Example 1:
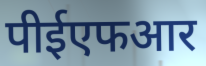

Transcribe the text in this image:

पीईएफआर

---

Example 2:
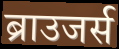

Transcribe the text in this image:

ब्राउजर्स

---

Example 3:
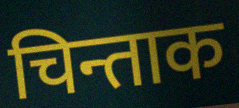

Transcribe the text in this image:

चिन्ताक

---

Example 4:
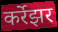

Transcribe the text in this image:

कर्रेझर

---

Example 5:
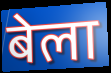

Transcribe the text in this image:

बेला